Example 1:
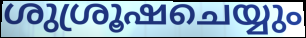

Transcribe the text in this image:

ശുശ്രൂഷചെയ്യും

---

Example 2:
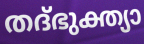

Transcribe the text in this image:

തദ്ഭുക്ത്യാ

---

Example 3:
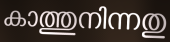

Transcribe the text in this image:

കാത്തുനിന്നതു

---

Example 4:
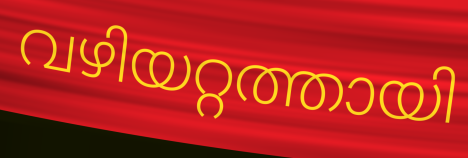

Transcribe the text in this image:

വഴിയറ്റത്തായി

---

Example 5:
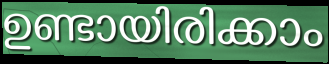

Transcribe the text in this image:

ഉണ്ടായിരിക്കാം